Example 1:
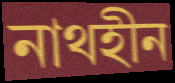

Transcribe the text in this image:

নাথহীন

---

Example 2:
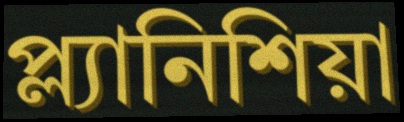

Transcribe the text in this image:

প্ল্যানিশিয়া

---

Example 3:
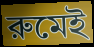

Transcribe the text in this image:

রুমেই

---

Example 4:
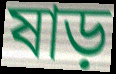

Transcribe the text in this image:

ষাড়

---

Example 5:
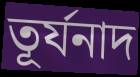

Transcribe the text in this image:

তূর্যনাদ